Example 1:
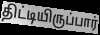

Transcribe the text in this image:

திட்டியிருப்பார்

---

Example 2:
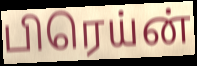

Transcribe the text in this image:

பிரெய்ன்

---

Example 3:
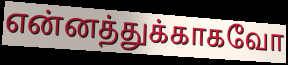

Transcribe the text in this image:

என்னத்துக்காகவோ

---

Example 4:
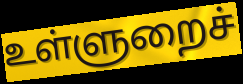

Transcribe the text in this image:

உள்ளுறைச்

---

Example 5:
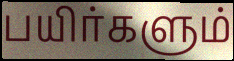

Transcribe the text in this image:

பயிர்களும்